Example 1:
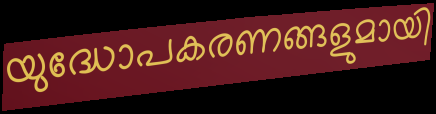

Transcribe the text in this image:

യുദ്ധോപകരണങ്ങളുമായി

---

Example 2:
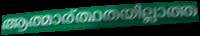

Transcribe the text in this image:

ആത്മാര്ത്ഥതയില്ലാത്ത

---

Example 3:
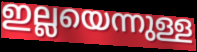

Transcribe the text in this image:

ഇല്ലയെന്നുള്ള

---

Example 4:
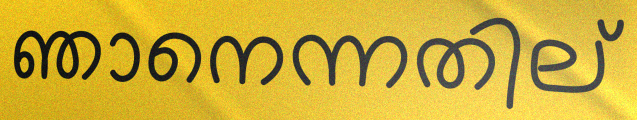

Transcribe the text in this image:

ഞാനെന്നതില്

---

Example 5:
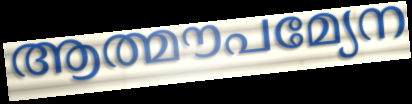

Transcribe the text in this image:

ആത്മൗപമ്യേന